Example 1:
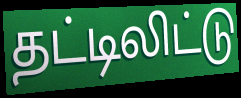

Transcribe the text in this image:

தட்டிலிட்டு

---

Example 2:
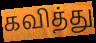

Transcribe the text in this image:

கவித்து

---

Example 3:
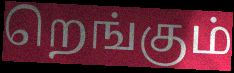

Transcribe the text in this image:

றெங்கும்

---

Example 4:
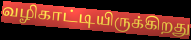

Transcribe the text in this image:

வழிகாட்டியிருக்கிறது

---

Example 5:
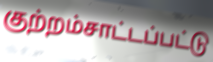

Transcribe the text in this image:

குற்றம்சாட்டப்பட்டு